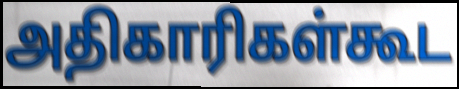
அதிகாரிகள்கூட